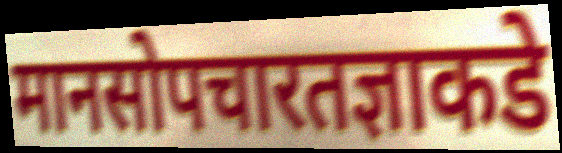
मानसोपचारतज्ञाकडे